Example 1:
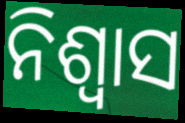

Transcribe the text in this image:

ନିଶ୍ଵାସ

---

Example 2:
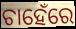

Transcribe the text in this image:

ଚାହେଁରେ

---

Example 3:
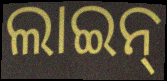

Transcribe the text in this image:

ଲାଇନ୍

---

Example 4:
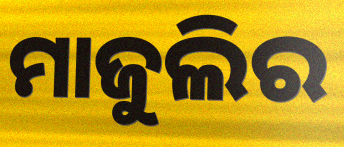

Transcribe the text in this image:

ମାଜୁଲିର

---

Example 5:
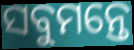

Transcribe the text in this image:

ସବୁମନ୍ତେ